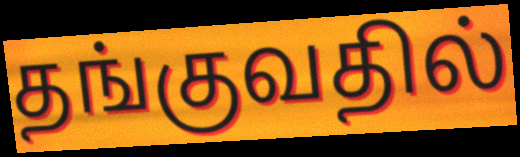
தங்குவதில்